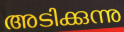
അടിക്കുന്നു